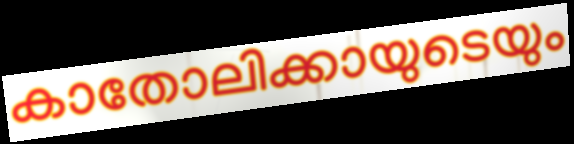
കാതോലിക്കായുടെയും